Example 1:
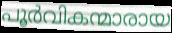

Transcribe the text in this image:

പൂർവികന്മാരായ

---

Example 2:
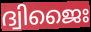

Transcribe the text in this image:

ദ്വിജൈഃ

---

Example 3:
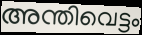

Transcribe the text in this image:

അന്തിവെട്ടം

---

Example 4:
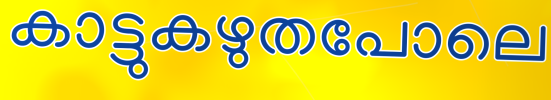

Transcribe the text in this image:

കാട്ടുകഴുതപോലെ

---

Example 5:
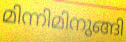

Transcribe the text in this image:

മിന്നിമിനുങ്ങി